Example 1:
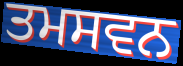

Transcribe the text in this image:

ਤਮਸਵਨ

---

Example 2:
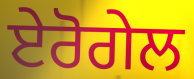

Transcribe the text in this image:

ਏਰੋਗੇਲ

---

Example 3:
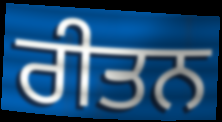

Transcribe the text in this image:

ਰੀਤਨ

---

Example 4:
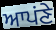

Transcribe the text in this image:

ਆਪਂਣੇ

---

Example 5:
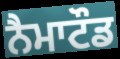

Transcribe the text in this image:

ਨੈਮਾਟੌਡ